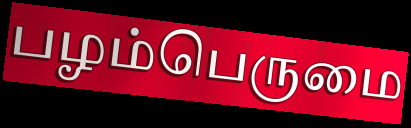
பழம்பெருமை